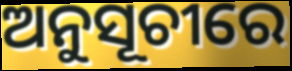
ଅନୁସୂଚୀରେ